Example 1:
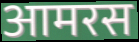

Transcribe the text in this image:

आमरस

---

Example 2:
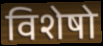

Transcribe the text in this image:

विशेषो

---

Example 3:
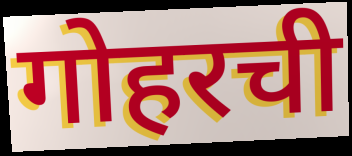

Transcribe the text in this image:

गोहरची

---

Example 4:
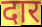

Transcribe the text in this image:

दार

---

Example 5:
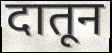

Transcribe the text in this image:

दातून